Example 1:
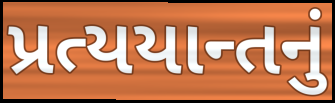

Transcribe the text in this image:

પ્રત્યયાન્તનું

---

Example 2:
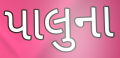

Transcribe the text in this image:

પાલુના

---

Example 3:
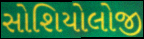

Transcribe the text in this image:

સોશિયોલોજી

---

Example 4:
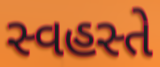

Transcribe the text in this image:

સ્વહસ્તે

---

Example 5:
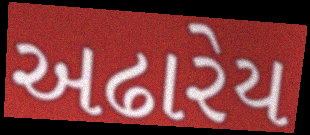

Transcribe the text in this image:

અઢારેય